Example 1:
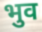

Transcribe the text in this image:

भुव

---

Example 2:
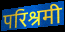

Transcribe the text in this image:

परिश्रमी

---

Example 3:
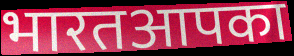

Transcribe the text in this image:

भारतआपका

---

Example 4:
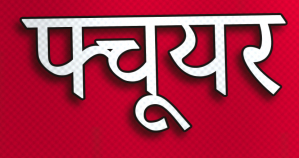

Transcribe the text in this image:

फ्चूयर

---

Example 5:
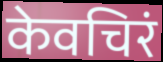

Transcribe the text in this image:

केवचिरं